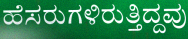
ಹೆಸರುಗಳಿರುತ್ತಿದ್ದವು